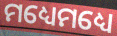
ମଧ୍ୟେମଧ୍ୟେ